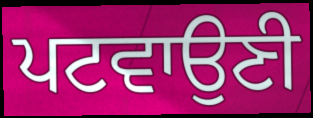
ਪਟਵਾਉਣੀ